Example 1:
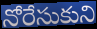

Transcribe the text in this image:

నోరేసుకుని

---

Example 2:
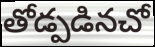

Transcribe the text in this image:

తోడ్పడినచో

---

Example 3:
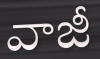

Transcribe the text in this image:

వాజీ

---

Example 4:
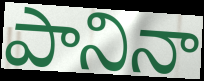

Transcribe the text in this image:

పానినా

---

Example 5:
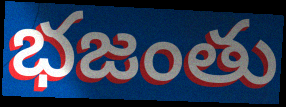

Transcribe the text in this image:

భజంతు